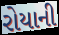
રોયાની